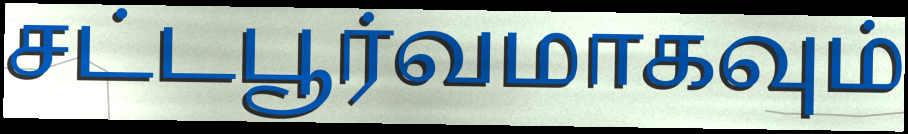
சட்டபூர்வமாகவும்